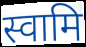
स्वामि